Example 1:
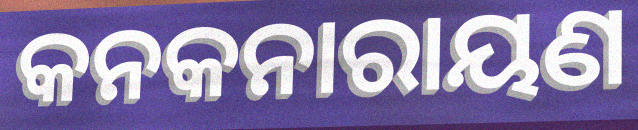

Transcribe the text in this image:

କନକନାରାୟଣ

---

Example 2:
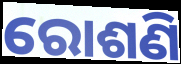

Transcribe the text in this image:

ରୋଶଣି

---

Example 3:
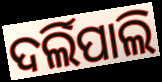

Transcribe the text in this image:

ଦର୍ଲିପାଲି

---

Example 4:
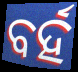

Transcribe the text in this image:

ବର୍ହ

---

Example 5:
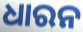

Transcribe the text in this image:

ଧାରନ